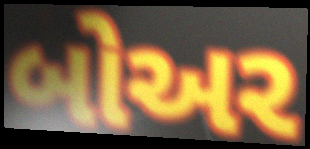
બોઅર